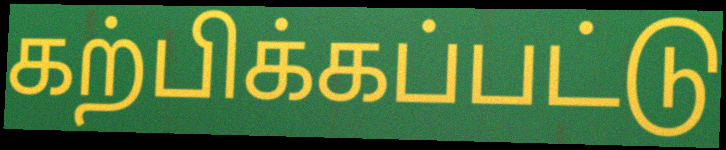
கற்பிக்கப்பட்டு